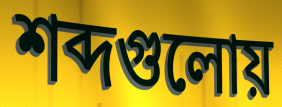
শব্দগুলোয়